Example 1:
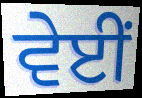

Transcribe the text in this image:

ਵੇਈਂ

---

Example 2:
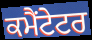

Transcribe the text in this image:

ਕਮੈਂਟੇਟਰ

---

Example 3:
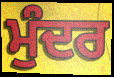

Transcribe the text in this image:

ਮੁੰਦਰ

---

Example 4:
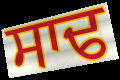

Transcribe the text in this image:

ਸਾਢ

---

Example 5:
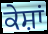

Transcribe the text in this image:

ਕੇਸ਼ਾਂ